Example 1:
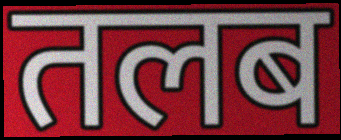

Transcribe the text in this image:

तलब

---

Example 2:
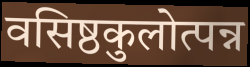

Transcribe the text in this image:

वसिष्ठकुलोत्पन्न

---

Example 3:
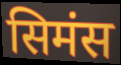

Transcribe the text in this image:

सिमंस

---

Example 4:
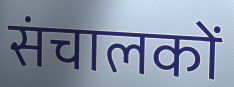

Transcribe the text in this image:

संचालकों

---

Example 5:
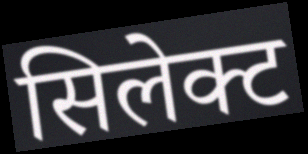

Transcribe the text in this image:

सिलेक्ट